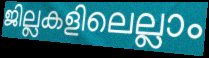
ജില്ലകളിലെല്ലാം